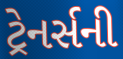
ટ્રેનર્સની